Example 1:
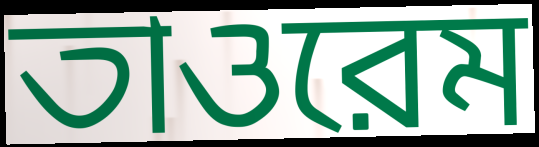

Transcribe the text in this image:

তাওরেম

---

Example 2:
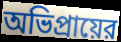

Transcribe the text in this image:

অভিপ্রায়ের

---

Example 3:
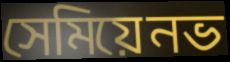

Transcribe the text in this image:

সেমিয়েনভ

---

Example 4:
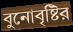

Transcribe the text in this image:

বুনোবৃষ্টির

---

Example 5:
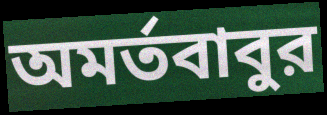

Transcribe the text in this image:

অমর্তবাবুর